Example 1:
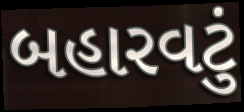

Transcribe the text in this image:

બહારવટું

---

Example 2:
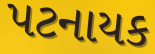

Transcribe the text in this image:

પટનાયક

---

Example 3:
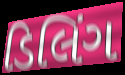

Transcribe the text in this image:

ડિલિંગ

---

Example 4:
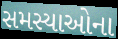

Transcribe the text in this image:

સમસ્યાઓના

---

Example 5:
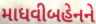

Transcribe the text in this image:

માધવીબહેનને